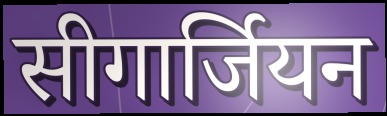
सीगार्जियन